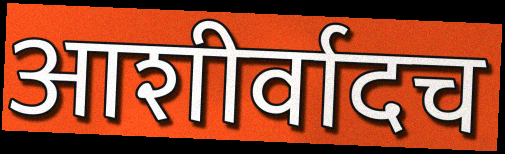
आशीर्वादच